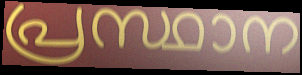
പ്രസ്ഥാന